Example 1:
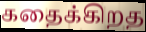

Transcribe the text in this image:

கதைக்கிறத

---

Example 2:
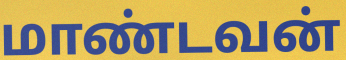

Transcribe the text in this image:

மாண்டவன்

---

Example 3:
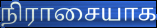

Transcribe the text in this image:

நிராசையாக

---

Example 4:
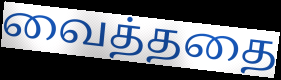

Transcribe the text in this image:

வைத்ததை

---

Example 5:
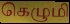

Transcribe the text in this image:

கெழுமி